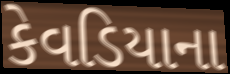
કેવડિયાના